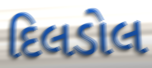
દિલડોલ